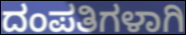
ದಂಪತಿಗಳಾಗಿ